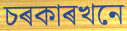
চৰকাৰখনে